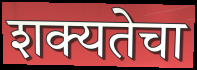
शक्यतेचा